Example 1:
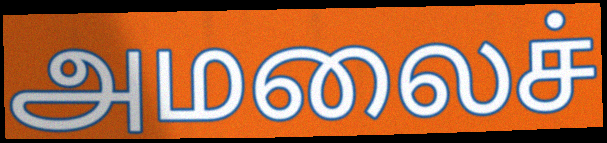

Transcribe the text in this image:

அமலைச்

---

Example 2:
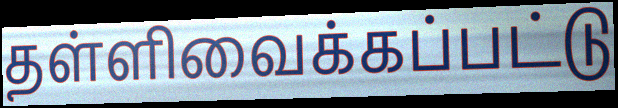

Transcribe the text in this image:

தள்ளிவைக்கப்பட்டு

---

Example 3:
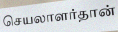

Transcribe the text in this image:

செயலாளர்தான்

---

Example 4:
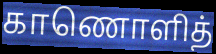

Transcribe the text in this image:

காணொளித்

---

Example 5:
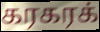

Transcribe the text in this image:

கரகரக்